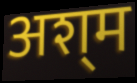
अश्म